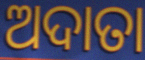
ଅଦାତା